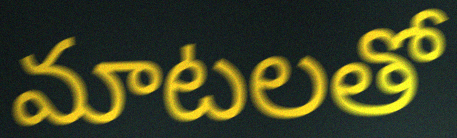
మాటలతో